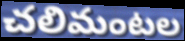
చలిమంటల